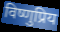
विष्णुप्रिय